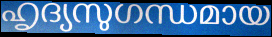
ഹൃദ്യസുഗന്ധമായ